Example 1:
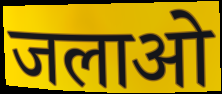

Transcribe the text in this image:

जलाओ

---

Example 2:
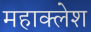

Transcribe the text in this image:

महाक्लेश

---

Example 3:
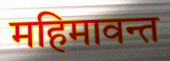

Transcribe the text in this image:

महिमावन्त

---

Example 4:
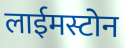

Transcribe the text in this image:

लाईमस्टोन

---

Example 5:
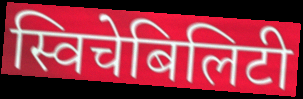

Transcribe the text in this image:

स्विचेबिलिटी